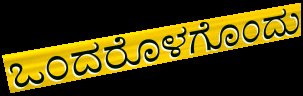
ಒಂದರೊಳಗೊಂದು